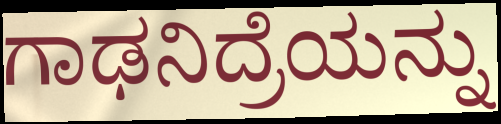
ಗಾಢನಿದ್ರೆಯನ್ನು